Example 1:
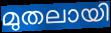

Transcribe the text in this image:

മുതലായി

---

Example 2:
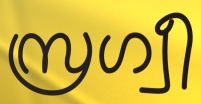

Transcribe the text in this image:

സ്രഗ്വീ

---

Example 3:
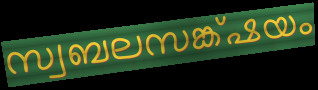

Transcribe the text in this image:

സ്വബലസങ്ക്ഷയം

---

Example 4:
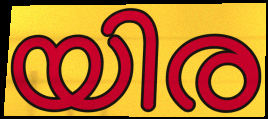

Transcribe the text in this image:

യിര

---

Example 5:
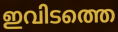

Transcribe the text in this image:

ഇവിടത്തെ